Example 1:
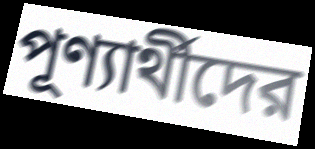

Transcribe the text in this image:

পূণ্যার্থীদের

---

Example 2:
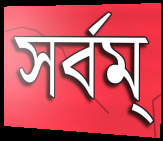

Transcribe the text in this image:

সর্বম্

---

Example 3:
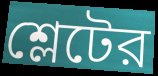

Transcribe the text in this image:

শ্লেটের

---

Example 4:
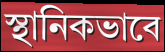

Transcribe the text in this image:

স্থানিকভাবে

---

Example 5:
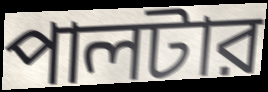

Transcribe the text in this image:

পালটার